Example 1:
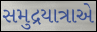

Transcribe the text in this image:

સમુદ્રયાત્રાએ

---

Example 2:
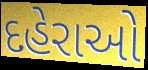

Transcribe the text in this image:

દહેરાઓ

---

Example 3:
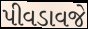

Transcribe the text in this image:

પીવડાવજે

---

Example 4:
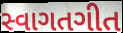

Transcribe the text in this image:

સ્વાગતગીત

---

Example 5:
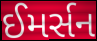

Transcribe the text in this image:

ઈમર્સન